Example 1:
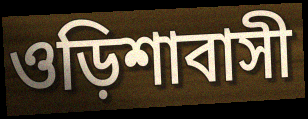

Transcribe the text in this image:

ওড়িশাবাসী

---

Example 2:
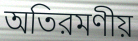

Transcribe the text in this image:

অতিরমণীয়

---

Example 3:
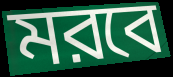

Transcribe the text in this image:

মরবে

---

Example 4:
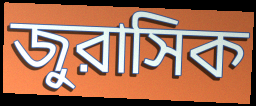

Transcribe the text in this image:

জুরাসিক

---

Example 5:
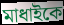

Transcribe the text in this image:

মাধাইকে